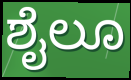
ಶೈಲೂ